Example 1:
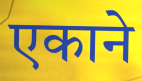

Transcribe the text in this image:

एकाने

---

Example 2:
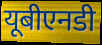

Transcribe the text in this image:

यूबीएनडी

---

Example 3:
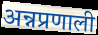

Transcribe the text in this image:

अन्नप्रणाली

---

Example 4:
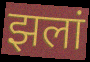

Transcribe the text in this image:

झलां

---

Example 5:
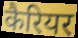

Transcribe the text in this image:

कैरियर